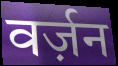
वर्ज़न